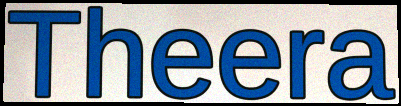
Theera